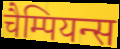
चैम्पियन्स